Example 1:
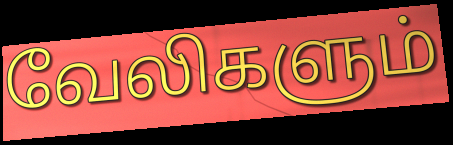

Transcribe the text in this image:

வேலிகளும்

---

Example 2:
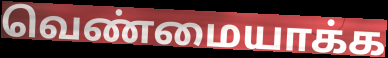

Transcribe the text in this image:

வெண்மையாக்க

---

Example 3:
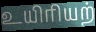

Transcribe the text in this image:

உயிரியற்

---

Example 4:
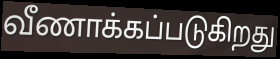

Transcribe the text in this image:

வீணாக்கப்படுகிறது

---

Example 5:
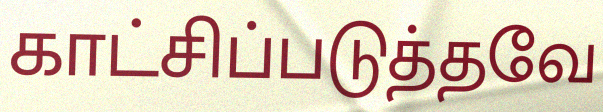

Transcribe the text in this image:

காட்சிப்படுத்தவே